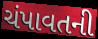
ચંપાવતની